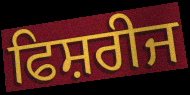
ਫਿਸ਼ਰੀਜ